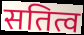
सतित्व